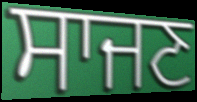
ਸਾਜਣ